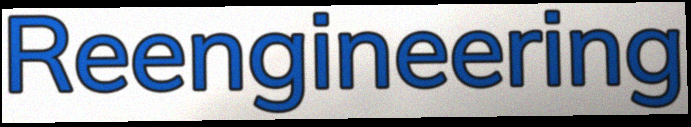
Reengineering